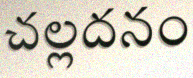
చల్లదనం